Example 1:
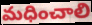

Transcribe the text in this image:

మధించాలి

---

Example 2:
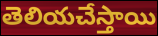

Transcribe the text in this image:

తెలియచేస్తాయి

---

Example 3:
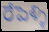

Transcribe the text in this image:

రేపెళ్ళి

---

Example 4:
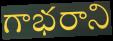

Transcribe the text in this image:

గాభరాని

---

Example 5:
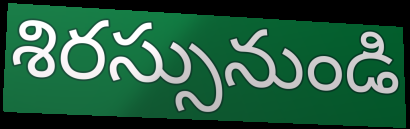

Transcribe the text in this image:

శిరస్సునుండి